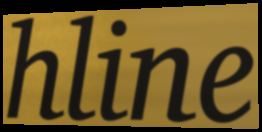
hline